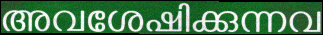
അവശേഷിക്കുന്നവ